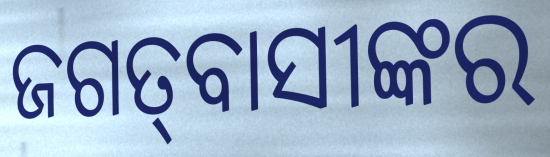
ଜଗତ୍‍ବାସୀଙ୍କର